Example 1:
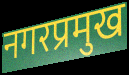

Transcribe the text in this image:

नगरप्रमुख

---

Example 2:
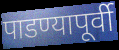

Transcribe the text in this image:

पाडण्यापूर्वी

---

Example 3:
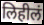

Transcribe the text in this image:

लिहीलं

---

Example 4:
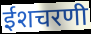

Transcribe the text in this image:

ईशचरणी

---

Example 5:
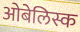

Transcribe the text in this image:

ओबेलिस्क